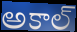
అకాల్